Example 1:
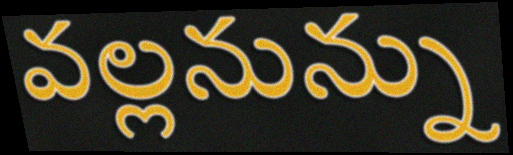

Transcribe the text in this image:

వల్లనున్ను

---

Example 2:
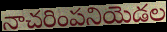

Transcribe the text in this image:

నాచరింపనియెడల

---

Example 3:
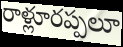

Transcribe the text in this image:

రాళ్లూరప్పలూ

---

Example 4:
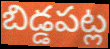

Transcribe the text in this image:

బిడ్డపట్ల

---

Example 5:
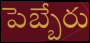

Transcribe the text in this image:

పెబ్బేరు